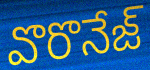
వొరొనేజ్